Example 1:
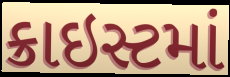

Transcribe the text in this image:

ક્રાઇસ્ટમાં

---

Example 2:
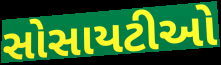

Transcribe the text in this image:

સોસાયટીઓ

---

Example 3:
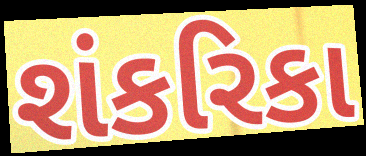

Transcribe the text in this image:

શંકરિકા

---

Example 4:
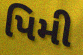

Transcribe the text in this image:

પિમી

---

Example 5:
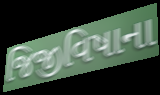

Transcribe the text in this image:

જિજીવિષાના